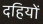
दहियों